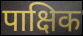
पाक्षिक